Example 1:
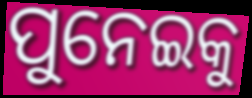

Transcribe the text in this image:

ପୁନେଇକୁ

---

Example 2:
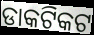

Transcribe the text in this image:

ଡାକଟିକଟ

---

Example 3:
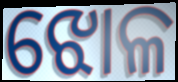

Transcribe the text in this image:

ଝୋଳ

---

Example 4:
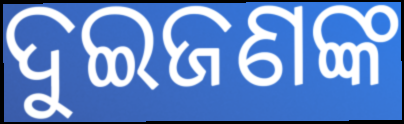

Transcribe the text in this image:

ଦୁଇଜଣଙ୍କ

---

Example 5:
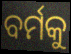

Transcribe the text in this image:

ବର୍ମକୁ